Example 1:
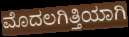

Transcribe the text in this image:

ಮೊದಲಗಿತ್ತಿಯಾಗಿ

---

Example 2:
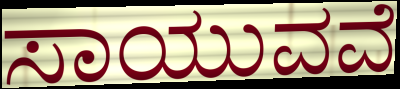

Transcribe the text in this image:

ಸಾಯುವವೆ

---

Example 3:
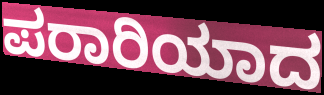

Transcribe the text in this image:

ಪರಾರಿಯಾದ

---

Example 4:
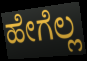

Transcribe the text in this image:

ಹೇಗೆಲ್ಲ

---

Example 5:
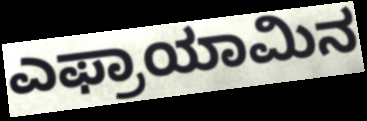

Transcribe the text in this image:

ಎಫ್ರಾಯಾಮಿನ